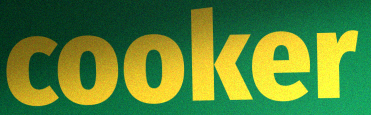
cooker